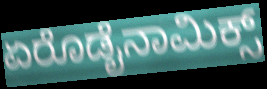
ಏರೊಡೈನಾಮಿಕ್ಸ್